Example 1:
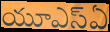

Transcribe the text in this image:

యూఎస్ఏ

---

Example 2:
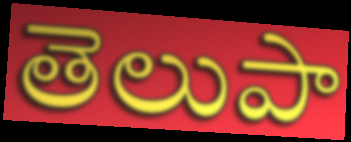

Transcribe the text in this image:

తెలుపా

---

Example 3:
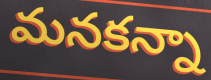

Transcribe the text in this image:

మనకన్నా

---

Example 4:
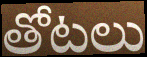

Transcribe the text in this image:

తోటలు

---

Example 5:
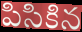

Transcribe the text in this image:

పిసికిన